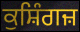
ਕੁਸ਼ਿੰਗਜ਼